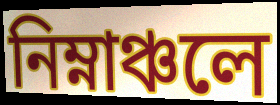
নিম্নাঞ্চলে